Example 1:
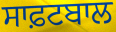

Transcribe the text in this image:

ਸਾਫ਼ਟਬਾਲ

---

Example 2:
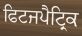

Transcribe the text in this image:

ਫਿਟਜਪੈਟ੍ਰਿਕ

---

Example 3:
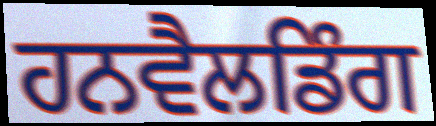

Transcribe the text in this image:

ਹਨਵੈਲਡਿੰਗ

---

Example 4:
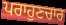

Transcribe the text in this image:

ਪਰਾਹੁਣਚਾਰ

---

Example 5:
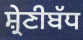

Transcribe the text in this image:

ਸ਼੍ਰੇਣੀਬੱਧ